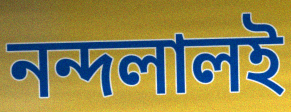
নন্দলালই